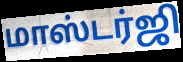
மாஸ்டர்ஜி